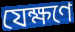
যেক্ষণে